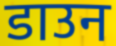
डाउन